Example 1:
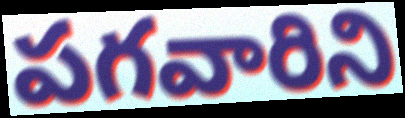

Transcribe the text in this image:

పగవారిని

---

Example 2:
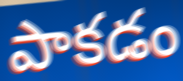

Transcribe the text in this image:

పాకడం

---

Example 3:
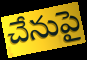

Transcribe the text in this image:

చేనుపై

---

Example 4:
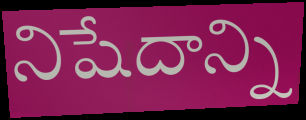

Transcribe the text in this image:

నిషేదాన్ని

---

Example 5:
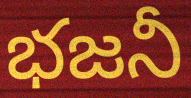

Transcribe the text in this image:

భజనీ